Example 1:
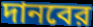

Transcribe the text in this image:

দানবের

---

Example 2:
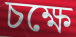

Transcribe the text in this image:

চক্ষে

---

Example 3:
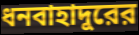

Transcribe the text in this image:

ধনবাহাদুরের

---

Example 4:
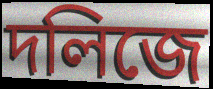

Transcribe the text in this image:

দলিজে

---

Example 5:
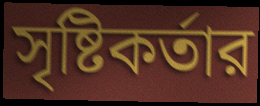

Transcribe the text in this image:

সৃষ্টিকর্তার